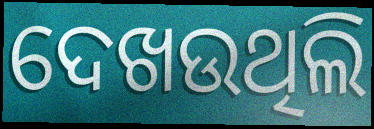
ଦେଖଉଥିଲି